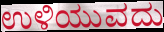
ಉಳಿಯುವದು